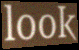
look